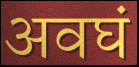
अवघं